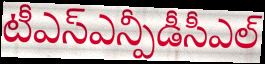
టీఎస్ఎన్పీడీసీఎల్